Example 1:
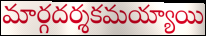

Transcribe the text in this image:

మార్గదర్శకమయ్యాయి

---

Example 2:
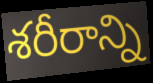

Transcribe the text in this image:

శరీరాన్ని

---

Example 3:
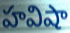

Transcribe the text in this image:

హవిషా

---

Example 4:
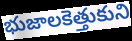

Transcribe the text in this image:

భుజాలకెత్తుకుని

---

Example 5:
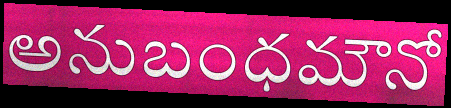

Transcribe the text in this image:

అనుబంధమౌనో